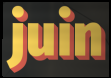
juin